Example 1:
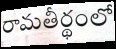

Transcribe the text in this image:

రామతీర్థంలో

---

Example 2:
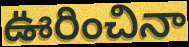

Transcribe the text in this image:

ఊరించినా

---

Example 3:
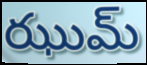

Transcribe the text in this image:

ఝుమ్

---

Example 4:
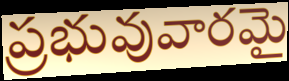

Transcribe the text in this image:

ప్రభువువారమై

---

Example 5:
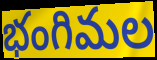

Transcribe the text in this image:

భంగిమల